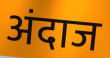
अंदाज